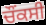
ਚੌਂਕਸੀ